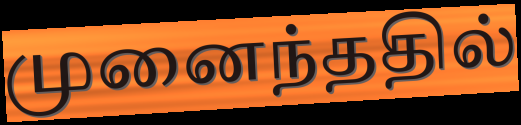
முனைந்ததில்